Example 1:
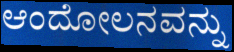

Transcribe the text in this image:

ಆಂದೋಲನವನ್ನು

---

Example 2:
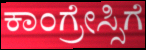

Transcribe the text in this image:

ಕಾಂಗ್ರೇಸ್ಸಿಗೆ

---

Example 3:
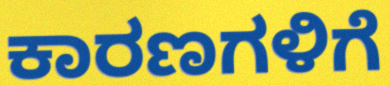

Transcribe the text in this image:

ಕಾರಣಗಳಿಗೆ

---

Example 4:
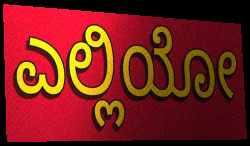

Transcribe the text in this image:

ಎಲ್ಲಿಯೋ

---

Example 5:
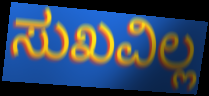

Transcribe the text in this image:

ಸುಖವಿಲ್ಲ